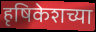
हृषिकेशच्या